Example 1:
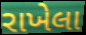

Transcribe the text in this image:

રાખેલા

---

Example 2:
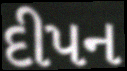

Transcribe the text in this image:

દીપન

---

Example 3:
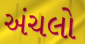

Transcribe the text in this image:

અંચલો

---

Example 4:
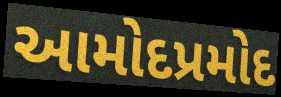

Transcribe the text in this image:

આમોદપ્રમોદ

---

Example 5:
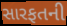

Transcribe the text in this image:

સારફતની